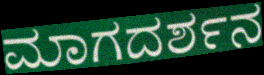
ಮಾಗದರ್ಶನ